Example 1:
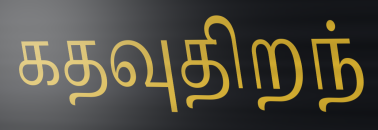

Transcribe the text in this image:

கதவுதிறந்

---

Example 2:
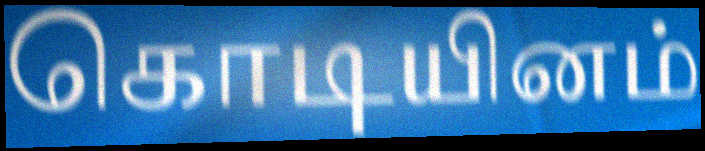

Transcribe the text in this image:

கொடியினம்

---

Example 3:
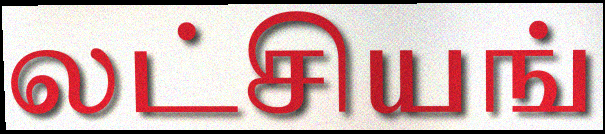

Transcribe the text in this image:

லட்சியங்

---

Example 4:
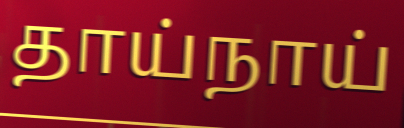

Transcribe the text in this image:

தாய்நாய்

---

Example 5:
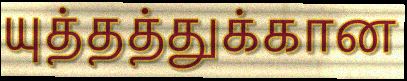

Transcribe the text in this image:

யுத்தத்துக்கான